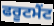
ਫਰੂਟਮੈਂਟ